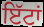
ਇੱਟਾਂ